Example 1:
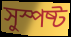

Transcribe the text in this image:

সুস্পষ্ট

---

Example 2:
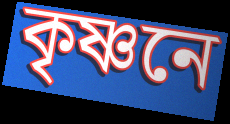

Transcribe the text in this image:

কৃষ্ণনে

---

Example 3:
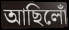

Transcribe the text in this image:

আছিলোঁ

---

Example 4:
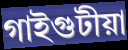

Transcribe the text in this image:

গাইগুটীয়া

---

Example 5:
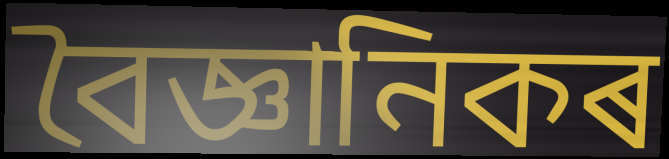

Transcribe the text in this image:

বৈজ্ঞানিকৰ